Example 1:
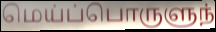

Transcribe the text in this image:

மெய்ப்பொருளுந்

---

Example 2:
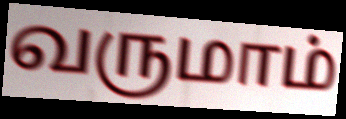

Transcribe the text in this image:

வருமாம்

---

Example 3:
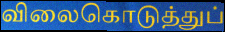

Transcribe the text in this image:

விலைகொடுத்துப்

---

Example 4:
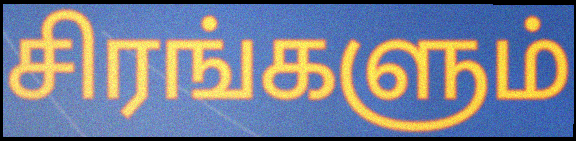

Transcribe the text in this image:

சிரங்களும்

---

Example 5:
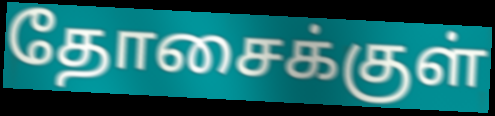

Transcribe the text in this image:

தோசைக்குள்